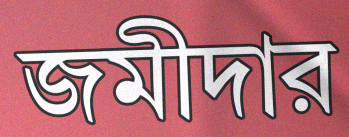
জমীদার